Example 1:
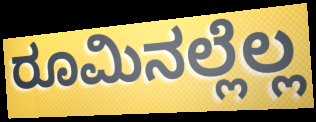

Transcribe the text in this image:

ರೂಮಿನಲ್ಲೆಲ್ಲ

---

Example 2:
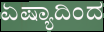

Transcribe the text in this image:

ಏಷ್ಯಾದಿಂದ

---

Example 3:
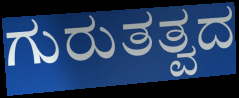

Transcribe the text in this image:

ಗುರುತತ್ವದ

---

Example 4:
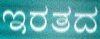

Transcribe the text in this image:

ಇರತದ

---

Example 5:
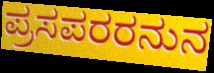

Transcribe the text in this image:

ಪ್ರಸಪರರನುನ